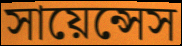
সায়েন্সেস